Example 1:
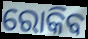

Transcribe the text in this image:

ରୋକିବ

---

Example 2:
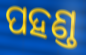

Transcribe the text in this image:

ପହଣ୍ଡ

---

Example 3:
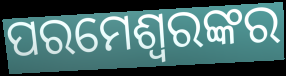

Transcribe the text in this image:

ପରମେଶ୍ୱରଙ୍କର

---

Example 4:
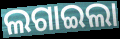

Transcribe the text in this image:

ଲଗାଇଲା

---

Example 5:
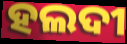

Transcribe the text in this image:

ହଲଦୀ